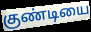
குண்டியை